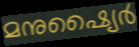
മനുഷ്യൈർ